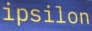
ipsilon